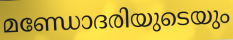
മണ്ഡോദരിയുടെയും